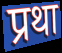
प्रथा